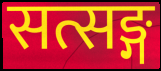
सत्सङ्ग